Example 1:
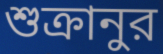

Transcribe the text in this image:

শুক্রানুর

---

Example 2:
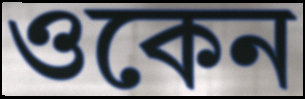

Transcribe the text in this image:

ওকেন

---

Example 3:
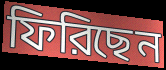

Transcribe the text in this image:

ফিরিছেন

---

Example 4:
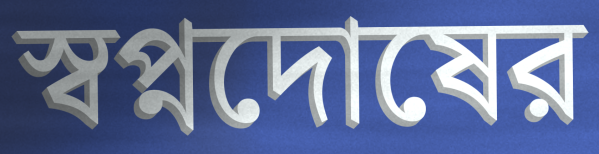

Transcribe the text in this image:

স্বপ্নদোষের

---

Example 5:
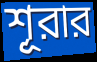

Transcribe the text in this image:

শূরার